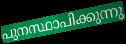
പുനസ്ഥാപിക്കുന്നു